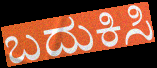
ಬದುಕಿಸಿ